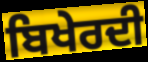
ਬਿਖੇਰਦੀ